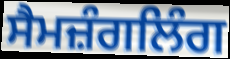
ਸੈਮਜ਼ੰਗਲਿੰਗ